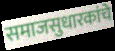
समाजसुधारकांचे